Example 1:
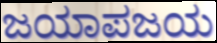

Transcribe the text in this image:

ಜಯಾಪಜಯ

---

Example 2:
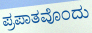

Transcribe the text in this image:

ಪ್ರಪಾತವೊಂದು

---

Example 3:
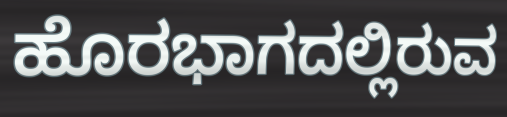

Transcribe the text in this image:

ಹೊರಭಾಗದಲ್ಲಿರುವ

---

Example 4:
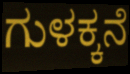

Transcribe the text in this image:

ಗುಳಕ್ಕನೆ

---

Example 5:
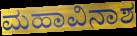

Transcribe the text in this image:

ಮಹಾವಿನಾಶ